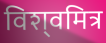
विश्वमित्र